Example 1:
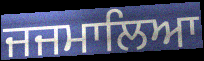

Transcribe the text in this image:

ਜਜਮਾਲਿਆ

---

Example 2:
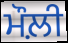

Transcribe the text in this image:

ਮੌਲ਼ੀ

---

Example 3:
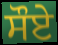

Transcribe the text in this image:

ਸੌਏ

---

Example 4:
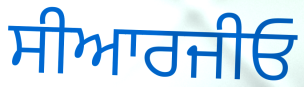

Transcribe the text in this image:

ਸੀਆਰਜੀਓ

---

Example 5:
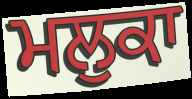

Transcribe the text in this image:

ਮਲੁਕਾ